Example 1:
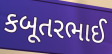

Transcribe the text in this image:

કબૂતરભાઈ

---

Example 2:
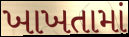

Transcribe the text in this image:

ખાખતામાં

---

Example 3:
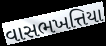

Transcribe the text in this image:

વાસભખત્તિયા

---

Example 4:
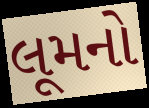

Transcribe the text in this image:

લૂમનો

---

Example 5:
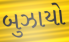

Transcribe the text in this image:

બુઝાયો